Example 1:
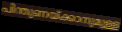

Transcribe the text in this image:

പിന്തുണയ്ക്കാനുമുള്ള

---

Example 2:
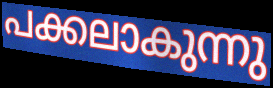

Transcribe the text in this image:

പക്കലാകുന്നു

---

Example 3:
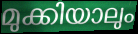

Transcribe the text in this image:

മുക്കിയാലും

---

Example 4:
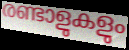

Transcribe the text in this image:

രണ്ടാളുകളും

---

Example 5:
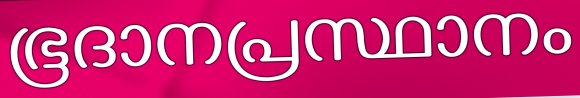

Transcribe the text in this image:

ഭൂദാനപ്രസ്ഥാനം